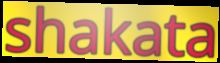
shakata